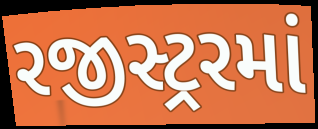
રજીસ્ટ્રરમાં